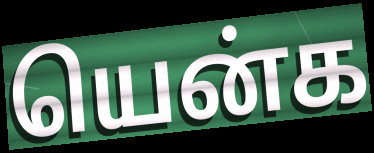
யென்க